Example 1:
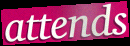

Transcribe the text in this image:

attends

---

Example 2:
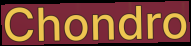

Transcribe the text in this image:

Chondro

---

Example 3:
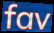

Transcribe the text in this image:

fav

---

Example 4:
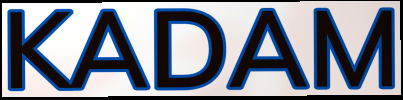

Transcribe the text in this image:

KADAM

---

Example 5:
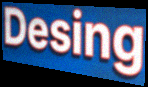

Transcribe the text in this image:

Desing